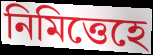
নিমিত্তেহে